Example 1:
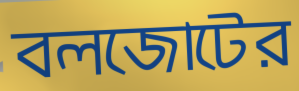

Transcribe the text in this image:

বলজোটের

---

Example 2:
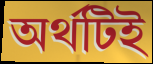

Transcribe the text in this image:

অর্থটিই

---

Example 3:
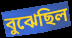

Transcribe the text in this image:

বুঝেছিল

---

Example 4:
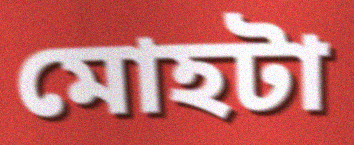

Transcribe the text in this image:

মোহটা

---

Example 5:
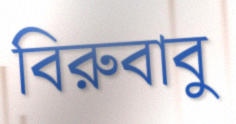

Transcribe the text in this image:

বিরুবাবু